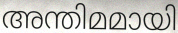
അന്തിമമായി